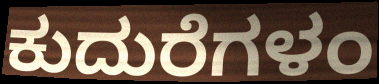
ಕುದುರೆಗಳಂ